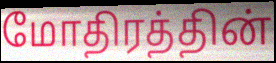
மோதிரத்தின்